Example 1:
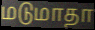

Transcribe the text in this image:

மடுமாதா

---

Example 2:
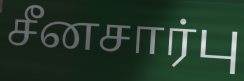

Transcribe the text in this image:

சீனசார்பு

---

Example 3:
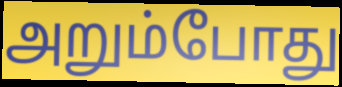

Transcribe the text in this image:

அறும்போது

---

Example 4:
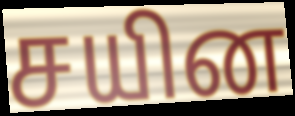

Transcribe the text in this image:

சயின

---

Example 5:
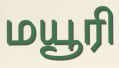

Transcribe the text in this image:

மயூரி